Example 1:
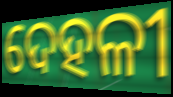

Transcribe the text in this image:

ଦେହଳୀ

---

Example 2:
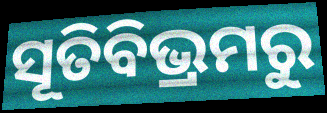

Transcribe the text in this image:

ସୂତିବିଭ୍ରମରୁ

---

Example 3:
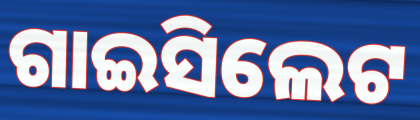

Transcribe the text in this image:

ଗାଇସିଲେଟ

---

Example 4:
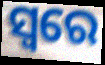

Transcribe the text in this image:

ସ୍ୱରେ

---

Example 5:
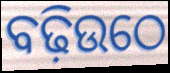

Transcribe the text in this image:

ବଢ଼ିଉଠେ